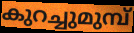
കുറച്ചുമുമ്പ്